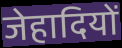
जेहादियों